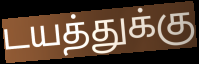
டயத்துக்கு